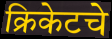
क्रिकेटचे